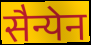
सैन्येन